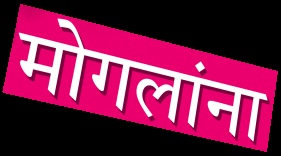
मोगलांना